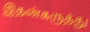
இதன்கருத்து